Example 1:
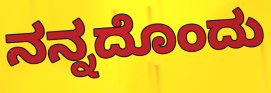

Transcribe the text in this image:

ನನ್ನದೊಂದು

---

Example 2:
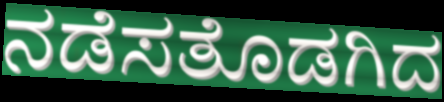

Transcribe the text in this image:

ನಡೆಸತೊಡಗಿದ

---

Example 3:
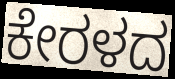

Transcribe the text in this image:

ಕೇರಳದ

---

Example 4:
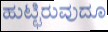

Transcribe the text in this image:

ಹುಟ್ಟಿರುವುದೂ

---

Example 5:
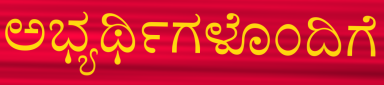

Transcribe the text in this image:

ಅಭ್ಯರ್ಥಿಗಳೊಂದಿಗೆ